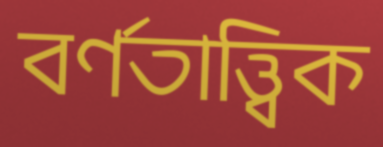
বৰ্ণতাত্ত্বিক